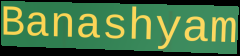
Banashyam